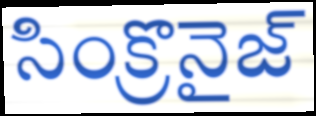
సింక్రొనైజ్